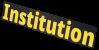
Institution